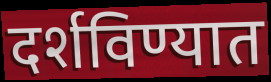
दर्शविण्यात